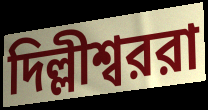
দিল্লীশ্বররা